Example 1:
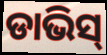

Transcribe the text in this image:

ଡାଭିସ୍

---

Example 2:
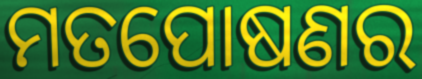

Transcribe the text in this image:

ମତପୋଷଣର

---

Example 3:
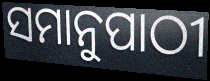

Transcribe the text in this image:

ସମାନୁପାଠୀ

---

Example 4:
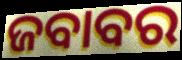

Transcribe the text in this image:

ଜବାବର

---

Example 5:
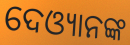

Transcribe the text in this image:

ଦେଓ୍ୟାନଙ୍କ